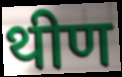
थीण